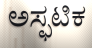
ಅಸ್ಫಟಿಕ